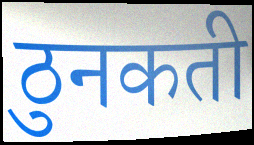
ठुनकती